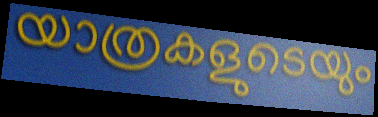
യാത്രകളുടെയും